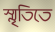
স্মৃতিতে